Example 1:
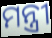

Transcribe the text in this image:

ମନ୍ତ୍ରୀ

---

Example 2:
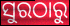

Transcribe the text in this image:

ସୁରଠାରୁ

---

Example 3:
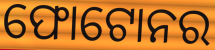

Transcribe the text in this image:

ଫୋଟୋନର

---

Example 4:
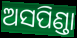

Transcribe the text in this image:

ଅସପିଣ୍ଡା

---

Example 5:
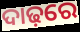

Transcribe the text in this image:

ଦାଢ଼ରେ